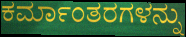
ಕರ್ಮಾಂತರಗಳನ್ನು